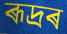
ৰূদ্ৰৰ